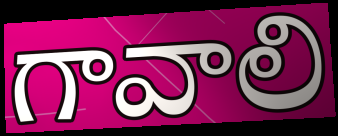
గావాలి